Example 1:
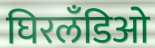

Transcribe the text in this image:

घिरलँडिओ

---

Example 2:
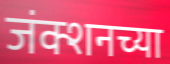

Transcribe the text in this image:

जंक्शनच्या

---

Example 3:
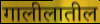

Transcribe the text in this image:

गालीलातील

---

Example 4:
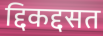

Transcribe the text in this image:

द्दिकद्दसत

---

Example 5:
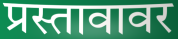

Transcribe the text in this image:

प्रस्तावावर